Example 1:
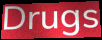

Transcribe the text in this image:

Drugs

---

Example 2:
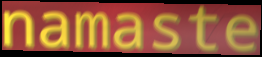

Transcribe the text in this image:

namaste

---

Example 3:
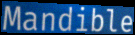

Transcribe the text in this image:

Mandible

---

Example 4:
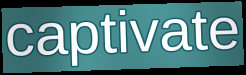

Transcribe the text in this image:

captivate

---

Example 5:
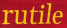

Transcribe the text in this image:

rutile